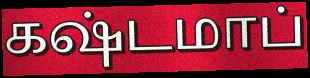
கஷ்டமாப்